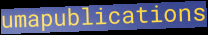
umapublications